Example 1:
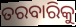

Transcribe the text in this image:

ତରବାରିକୁ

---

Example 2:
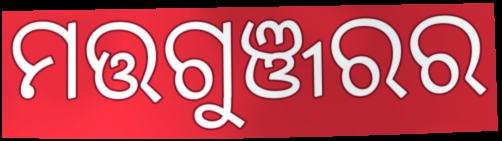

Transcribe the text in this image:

ମତ୍ତଗୁଞ୍ଜରର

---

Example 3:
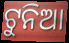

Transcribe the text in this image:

ଟୁନିଆ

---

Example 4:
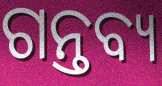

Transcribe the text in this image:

ଗନ୍ତବ୍ୟ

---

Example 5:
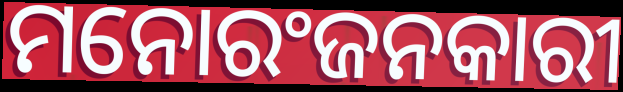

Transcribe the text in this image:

ମନୋରଂଜନକାରୀ